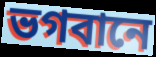
ভগবানে